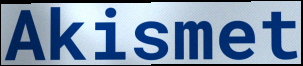
Akismet